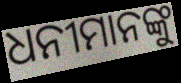
ଧନୀମାନଙ୍କୁ